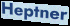
Heptner